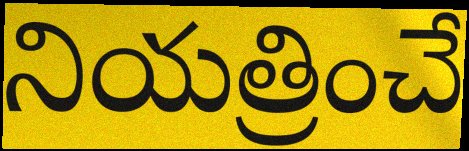
నియత్రించే